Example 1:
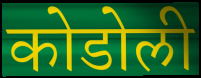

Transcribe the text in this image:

कोडोली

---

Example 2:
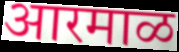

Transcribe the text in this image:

आरमाळ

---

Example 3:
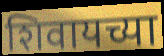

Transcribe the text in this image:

शिवायच्या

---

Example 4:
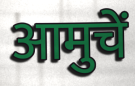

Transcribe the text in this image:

आमुचें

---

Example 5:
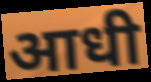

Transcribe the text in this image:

आधी